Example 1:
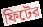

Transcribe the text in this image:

ফিটের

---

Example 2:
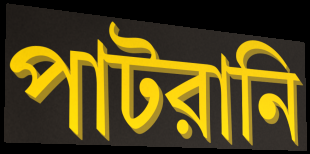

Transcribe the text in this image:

পাটরানি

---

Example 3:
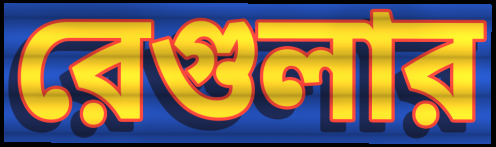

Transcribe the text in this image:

রেগুলার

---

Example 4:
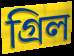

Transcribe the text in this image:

গ্রিল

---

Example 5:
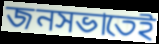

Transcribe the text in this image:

জনসভাতেই